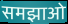
समझाओ